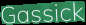
Gassick